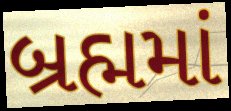
બ્રહ્મમાં